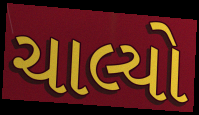
ચાલ્યો